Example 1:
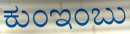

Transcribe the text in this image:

ಕುಂಇಂಬು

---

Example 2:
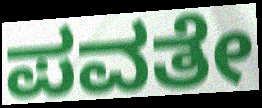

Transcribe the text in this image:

ಪವತೇ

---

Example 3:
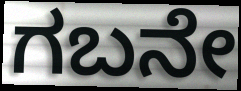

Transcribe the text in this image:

ಗಬನೇ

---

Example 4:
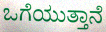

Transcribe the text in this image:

ಒಗೆಯುತ್ತಾನೆ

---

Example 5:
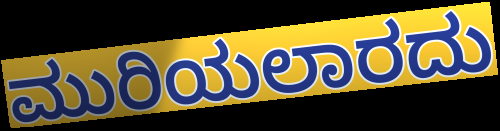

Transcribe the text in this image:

ಮುರಿಯಲಾರದು